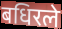
बधिरले